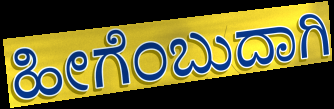
ಹೀಗೆಂಬುದಾಗಿ